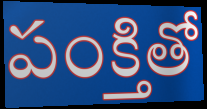
పంక్తితో